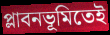
প্লাবনভূমিতেই